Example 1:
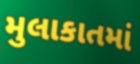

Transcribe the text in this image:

મુલાકાતમાં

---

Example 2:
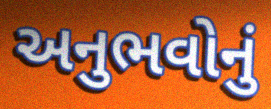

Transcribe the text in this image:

અનુભવોનું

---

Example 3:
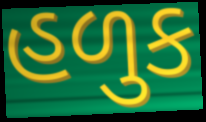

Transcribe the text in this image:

હળુક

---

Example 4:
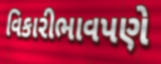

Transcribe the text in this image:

વિકારીભાવપણે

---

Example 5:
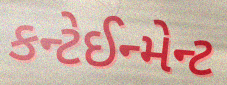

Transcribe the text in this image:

કન્ટેઈન્મેન્ટ